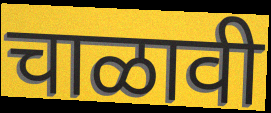
चाळावी